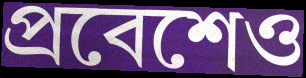
প্রবেশেও